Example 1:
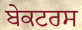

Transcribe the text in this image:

ਬੇਕਟਰਸ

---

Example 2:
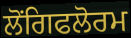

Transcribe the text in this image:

ਲੋਂਗਿਫਲੋਰਮ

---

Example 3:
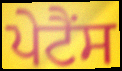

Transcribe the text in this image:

ਪੇਟੈਂਸ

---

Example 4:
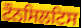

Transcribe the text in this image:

ਟੌਨਸਿਲਟਿਸ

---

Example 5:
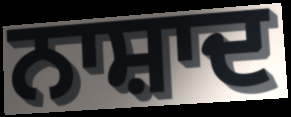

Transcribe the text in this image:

ਨਾਸ਼ਾਦ